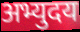
अभ्युदय